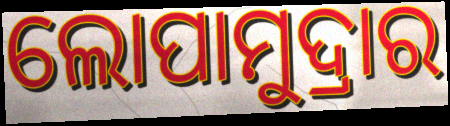
ଲୋପାମୁଦ୍ରାର